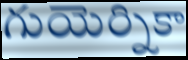
గుయెర్నికా